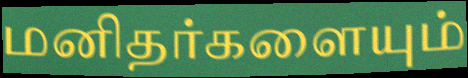
மனிதர்களையும்